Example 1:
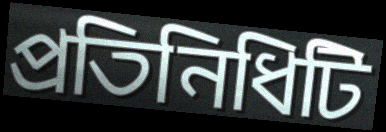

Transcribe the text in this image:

প্রতিনিধিটি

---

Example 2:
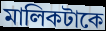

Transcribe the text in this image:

মালিকটাকে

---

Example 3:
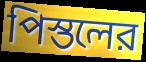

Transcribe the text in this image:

পিস্তলের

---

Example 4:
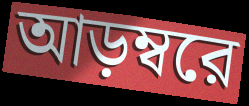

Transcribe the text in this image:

আড়ম্বরে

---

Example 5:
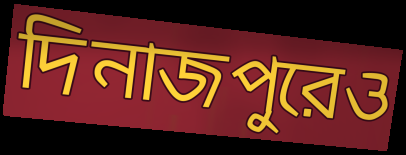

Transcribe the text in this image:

দিনাজপুরেও